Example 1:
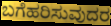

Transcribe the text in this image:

ಬಗೆಹರಿಸುವುದರ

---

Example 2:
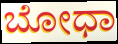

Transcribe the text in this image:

ಬೋಧಾ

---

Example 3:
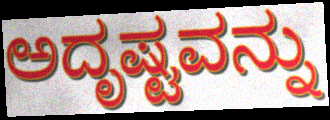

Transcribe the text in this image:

ಅದೃಷ್ಟವನ್ನು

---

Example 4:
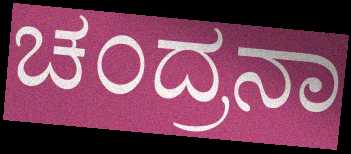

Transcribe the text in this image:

ಚಂದ್ರನಾ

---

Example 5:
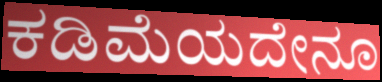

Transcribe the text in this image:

ಕಡಿಮೆಯದೇನೂ